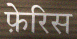
फ़ेरिस